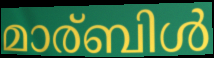
മാര്ബിൾ